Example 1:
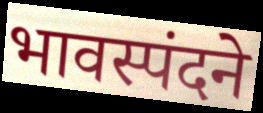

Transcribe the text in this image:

भावस्पंदने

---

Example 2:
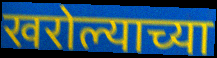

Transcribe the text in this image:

खरोल्याच्या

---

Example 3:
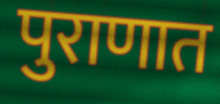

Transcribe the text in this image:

पुराणात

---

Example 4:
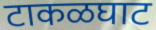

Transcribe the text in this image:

टाकळघाट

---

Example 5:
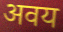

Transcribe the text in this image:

अवय